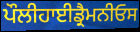
ਪੌਲੀਹਾਈਡ੍ਰੈਮਨੀਓਸ